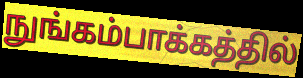
நுங்கம்பாக்கத்தில்